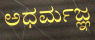
ಅಧರ್ಮಜ್ಞ